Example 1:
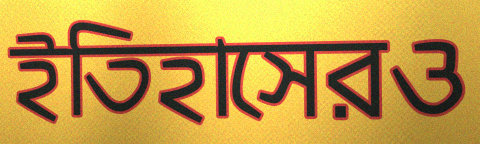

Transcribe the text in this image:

ইতিহাসেরও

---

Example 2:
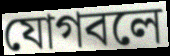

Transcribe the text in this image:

যোগবলে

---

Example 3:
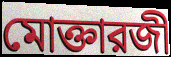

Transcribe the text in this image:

মোক্তারজী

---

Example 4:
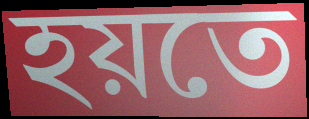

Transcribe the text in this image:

হয়তে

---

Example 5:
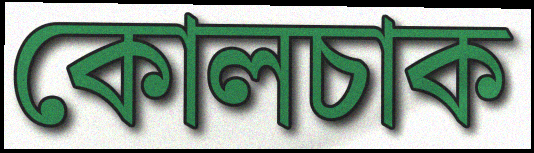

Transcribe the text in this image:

কোলচাক